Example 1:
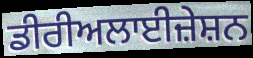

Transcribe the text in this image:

ਡੀਰੀਅਲਾਈਜ਼ੇਸ਼ਨ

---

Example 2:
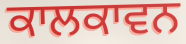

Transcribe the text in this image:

ਕਾਲਕਾਵਨ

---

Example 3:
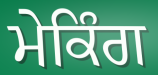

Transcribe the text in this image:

ਮੇਕਿੰਗ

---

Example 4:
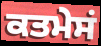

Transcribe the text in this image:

ਕਤਮੇਸਂ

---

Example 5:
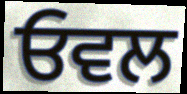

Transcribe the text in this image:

ਓਵਲ